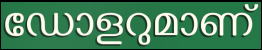
ഡോളറുമാണ്